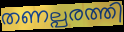
തണല്പരത്തി